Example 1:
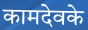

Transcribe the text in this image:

कामदेवके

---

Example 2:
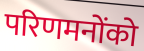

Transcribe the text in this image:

परिणमनोंको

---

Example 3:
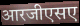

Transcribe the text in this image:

आरजीएसए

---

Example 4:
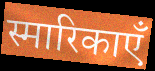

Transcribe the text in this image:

स्मारिकाएँ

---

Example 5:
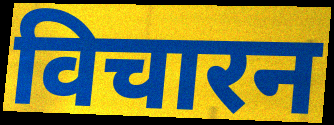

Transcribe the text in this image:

विचारन